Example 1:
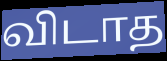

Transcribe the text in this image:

விடாத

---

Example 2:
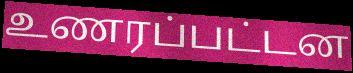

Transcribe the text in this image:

உணரப்பட்டன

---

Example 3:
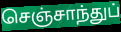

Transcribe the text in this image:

செஞ்சாந்துப்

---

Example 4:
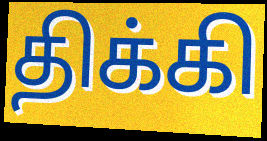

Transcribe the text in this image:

திக்கி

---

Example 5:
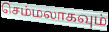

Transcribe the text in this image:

செம்மலாகவும்